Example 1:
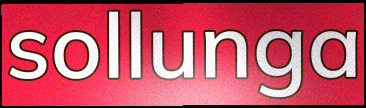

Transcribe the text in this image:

sollunga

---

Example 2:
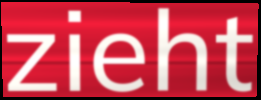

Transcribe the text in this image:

zieht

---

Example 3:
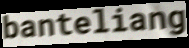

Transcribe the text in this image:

banteliang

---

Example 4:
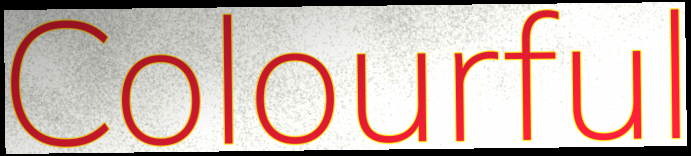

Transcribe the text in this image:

Colourful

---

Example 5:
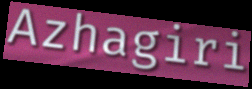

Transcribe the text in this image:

Azhagiri